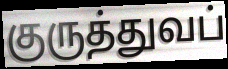
குருத்துவப்